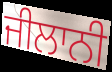
ਜੀਲਾਨੀ